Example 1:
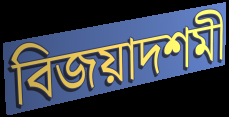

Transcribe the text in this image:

বিজয়াদশমী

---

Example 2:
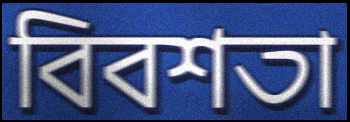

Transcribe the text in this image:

বিবশতা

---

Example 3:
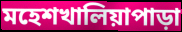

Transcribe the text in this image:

মহেশখালিয়াপাড়া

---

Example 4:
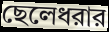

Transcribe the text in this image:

ছেলেধরার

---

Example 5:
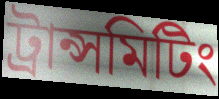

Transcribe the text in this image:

ট্রান্সমিটিং